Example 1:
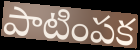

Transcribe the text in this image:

పాటింపక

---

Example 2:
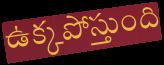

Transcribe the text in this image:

ఉక్కపోస్తుంది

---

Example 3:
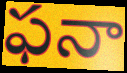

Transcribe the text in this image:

ఫనా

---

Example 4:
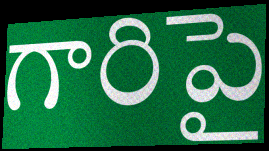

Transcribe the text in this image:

గారిపై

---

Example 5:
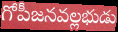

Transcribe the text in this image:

గోపీజనవల్లభుడు